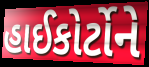
હાઈકોર્ટોને